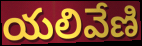
యలివేణి